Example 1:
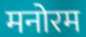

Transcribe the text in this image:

मनोरम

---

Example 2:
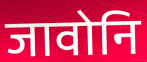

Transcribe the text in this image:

जावोनि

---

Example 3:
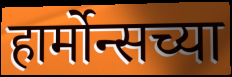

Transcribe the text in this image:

हार्मोन्सच्या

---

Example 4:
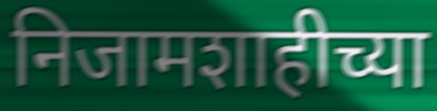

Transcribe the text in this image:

निजामशाहीच्या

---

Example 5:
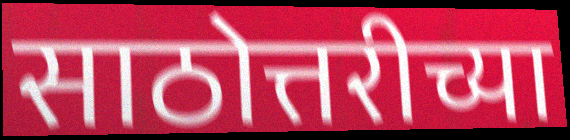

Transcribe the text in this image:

साठोत्तरीच्या